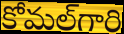
కోమల్‌గారి